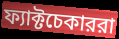
ফ্যাক্টচেকাররা